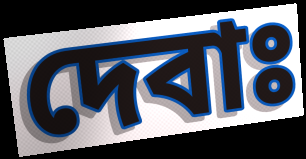
দেবাঃ